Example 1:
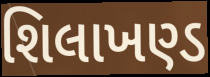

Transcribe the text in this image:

શિલાખણ્ડ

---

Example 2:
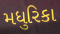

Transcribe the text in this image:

મધુરિકા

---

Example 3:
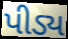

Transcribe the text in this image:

પીડ્ય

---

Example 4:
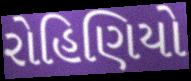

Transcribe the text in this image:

રોહિણિયો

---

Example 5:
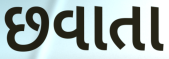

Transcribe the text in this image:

છવાતા